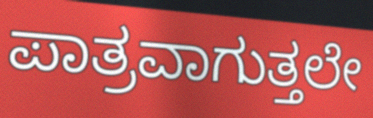
ಪಾತ್ರವಾಗುತ್ತಲೇ